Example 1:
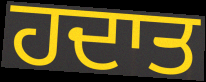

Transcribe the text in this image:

ਹਦਾਤ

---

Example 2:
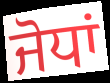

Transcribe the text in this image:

ਜੋਧਾਂ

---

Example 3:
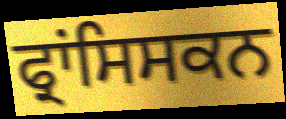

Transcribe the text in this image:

ਫ੍ਰਾਂਸਿਸਕਨ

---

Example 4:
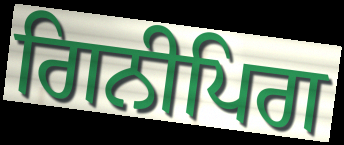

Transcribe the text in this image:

ਗਿਨੀਪਿਗ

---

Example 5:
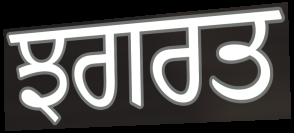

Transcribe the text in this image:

ਝਗਰਤ